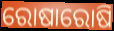
ରୋଷାରୋଷି